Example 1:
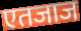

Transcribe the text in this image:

एतजाज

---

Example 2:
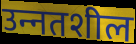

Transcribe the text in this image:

उन्नतशील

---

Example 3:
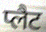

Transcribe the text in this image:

प्लैट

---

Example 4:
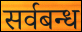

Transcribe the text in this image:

सर्वबन्ध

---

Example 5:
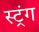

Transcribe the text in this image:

स्ट्रंग